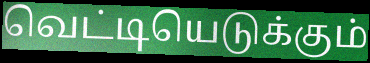
வெட்டியெடுக்கும்